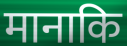
मानाकि